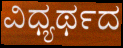
ವಿಧ್ಯರ್ಥದ